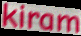
kiram